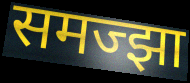
समज्झा